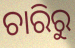
ଚାରିରୁ